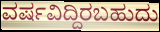
ವರ್ಷವಿದ್ದಿರಬಹುದು